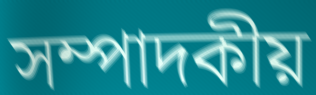
সম্পাদকীয়